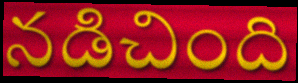
నడిచింది